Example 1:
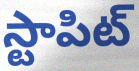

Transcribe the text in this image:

స్టాపిట్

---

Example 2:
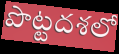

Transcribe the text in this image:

పొట్టదశలో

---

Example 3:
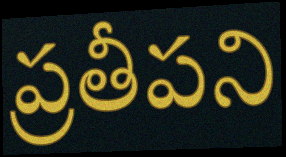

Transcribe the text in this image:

ప్రతీపని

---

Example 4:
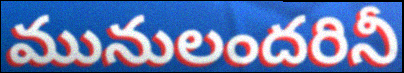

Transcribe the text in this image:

మునులందరినీ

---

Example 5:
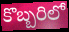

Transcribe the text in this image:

కొబ్బరిలో